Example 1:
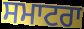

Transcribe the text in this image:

ਸਮਾਟਰਾ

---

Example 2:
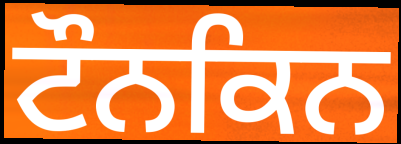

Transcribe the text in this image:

ਟੌਨਕਿਨ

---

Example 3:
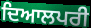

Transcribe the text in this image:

ਦਿਆਲਪਰੀ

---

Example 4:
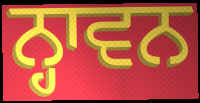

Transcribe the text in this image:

ਨ੍ਹਾਵਨ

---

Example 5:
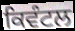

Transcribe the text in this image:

ਕਿਵੰਟਲ